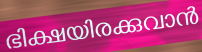
ഭിക്ഷയിരക്കുവാൻ